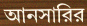
আনসারির